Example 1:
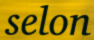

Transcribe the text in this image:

selon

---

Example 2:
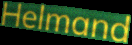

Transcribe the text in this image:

Helmand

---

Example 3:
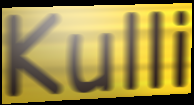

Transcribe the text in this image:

Kulli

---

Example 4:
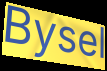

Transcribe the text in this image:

Bysel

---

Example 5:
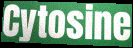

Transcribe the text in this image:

Cytosine